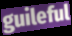
guileful